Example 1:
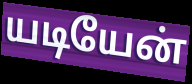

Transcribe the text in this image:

யடியேன்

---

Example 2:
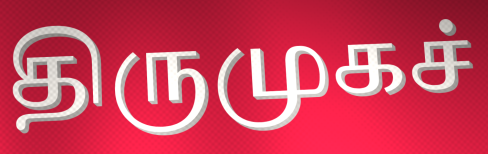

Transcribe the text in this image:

திருமுகச்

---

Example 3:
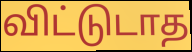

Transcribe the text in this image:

விட்டுடாத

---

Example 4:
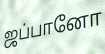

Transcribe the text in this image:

ஜப்பானோ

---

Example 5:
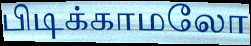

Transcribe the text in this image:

பிடிக்காமலோ